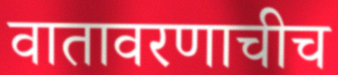
वातावरणाचीच